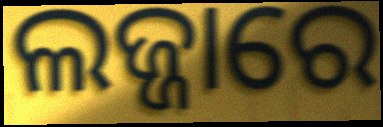
ଲଜ୍ଜାରେ